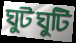
ঘুটঘুটি